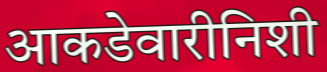
आकडेवारीनिशी